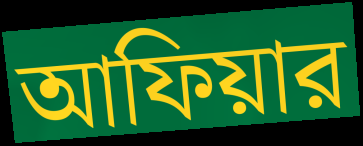
আফিয়ার